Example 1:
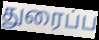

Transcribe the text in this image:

துரைப்ப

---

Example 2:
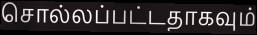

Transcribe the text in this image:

சொல்லப்பட்டதாகவும்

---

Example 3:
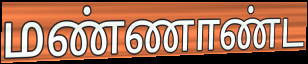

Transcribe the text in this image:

மண்ணாண்ட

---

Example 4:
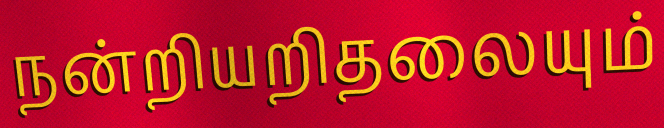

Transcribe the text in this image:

நன்றியறிதலையும்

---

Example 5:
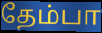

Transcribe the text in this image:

தேம்பா